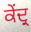
ਕੇਂਦ੍ਰ